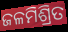
ଜଳମିଶ୍ରିତ